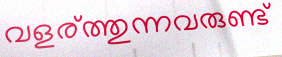
വളര്ത്തുന്നവരുണ്ട്